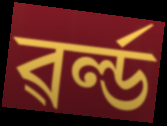
ৱৰ্ল্ড